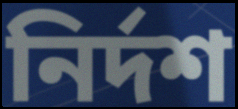
নির্দশ